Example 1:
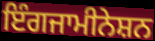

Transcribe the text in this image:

ਇੰਗਜਾਮੀਨੇਸ਼ਨ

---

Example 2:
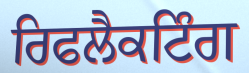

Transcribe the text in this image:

ਰਿਫਲੈਕਟਿੰਗ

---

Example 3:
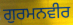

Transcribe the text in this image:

ਗੁਰਮਨਵੀਰ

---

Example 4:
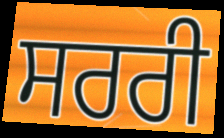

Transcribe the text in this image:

ਸਰਰੀ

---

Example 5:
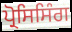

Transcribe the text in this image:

ਪ੍ਰੋਸਿਸਿੰਗ